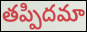
తప్పిదమా